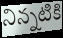
నిన్నటికి